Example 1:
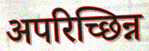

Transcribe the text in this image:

अपरिच्छिन्न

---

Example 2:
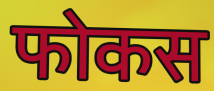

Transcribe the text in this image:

फोकस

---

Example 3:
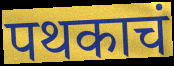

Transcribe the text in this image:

पथकाचं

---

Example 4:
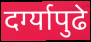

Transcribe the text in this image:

दर्ग्यापुढे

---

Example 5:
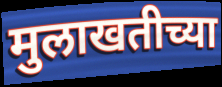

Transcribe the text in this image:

मुलाखतीच्या